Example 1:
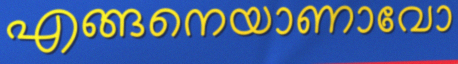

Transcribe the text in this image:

എങ്ങനെയാണാവോ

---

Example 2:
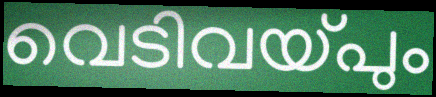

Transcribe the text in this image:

വെടിവയ്പും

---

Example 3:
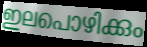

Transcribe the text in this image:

ഇലപൊഴിക്കും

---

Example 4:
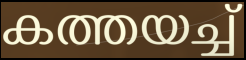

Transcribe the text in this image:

കത്തയച്ച്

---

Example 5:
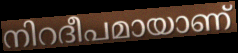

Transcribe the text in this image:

നിറദീപമായാണ്